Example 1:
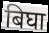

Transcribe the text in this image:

बिघा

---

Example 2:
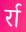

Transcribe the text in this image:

र्रा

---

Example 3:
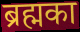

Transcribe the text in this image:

ब्रह्मका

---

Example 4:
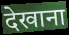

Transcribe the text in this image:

देखाना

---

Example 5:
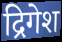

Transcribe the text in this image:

द्रिगेश